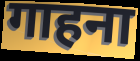
गाहना